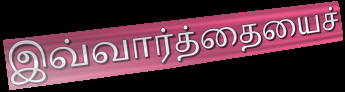
இவ்வார்த்தையைச்